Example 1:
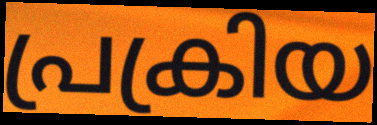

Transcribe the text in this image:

പ്രക്രിയ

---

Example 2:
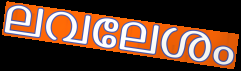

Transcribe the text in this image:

ലവലേശം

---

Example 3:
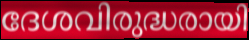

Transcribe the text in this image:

ദേശവിരുദ്ധരായി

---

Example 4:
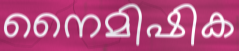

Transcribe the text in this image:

നൈമിഷിക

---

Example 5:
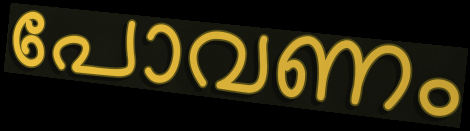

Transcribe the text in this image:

പോവണം